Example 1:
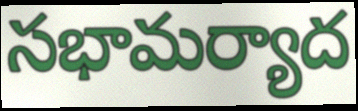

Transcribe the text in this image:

సభామర్యాద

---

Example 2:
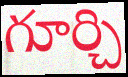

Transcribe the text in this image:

గూర్చి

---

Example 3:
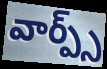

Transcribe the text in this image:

వార్ప్స్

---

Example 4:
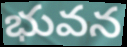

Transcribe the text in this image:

భువన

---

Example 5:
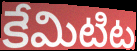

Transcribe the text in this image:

కేమిటిట